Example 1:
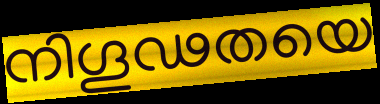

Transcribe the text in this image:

നിഗൂഢതയെ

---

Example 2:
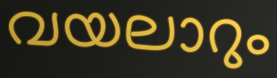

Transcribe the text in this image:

വയലാറും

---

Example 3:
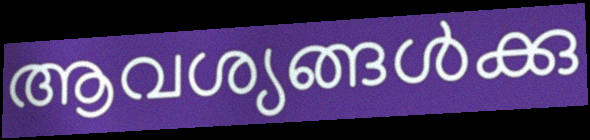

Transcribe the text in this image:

ആവശ്യങ്ങൾക്കു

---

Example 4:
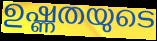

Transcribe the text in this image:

ഉഷ്ണതയുടെ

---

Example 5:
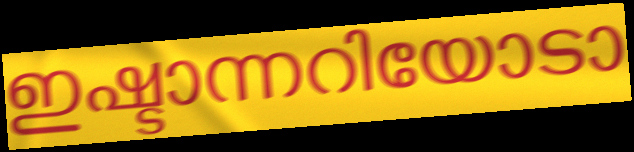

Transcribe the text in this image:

ഇഷ്ടാന്നറിയോടാ